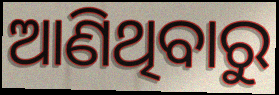
ଆଣିଥିବାରୁ